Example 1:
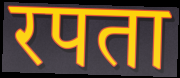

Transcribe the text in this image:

रपता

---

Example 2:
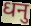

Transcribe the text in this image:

धनु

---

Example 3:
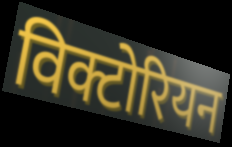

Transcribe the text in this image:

विक्टोरियन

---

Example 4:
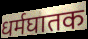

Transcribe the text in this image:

धर्मघातक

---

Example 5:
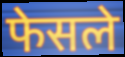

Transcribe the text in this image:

फेसले